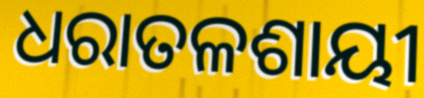
ଧରାତଳଶାୟୀ